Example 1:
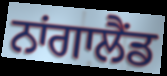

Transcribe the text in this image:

ਨਾਂਗਾਲੈਂਡ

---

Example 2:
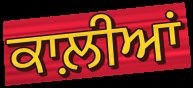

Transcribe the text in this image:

ਕਾਲ਼ੀਆਂ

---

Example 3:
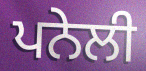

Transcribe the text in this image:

ਪਨੇਲੀ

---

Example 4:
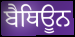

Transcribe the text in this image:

ਬੈਥਿਊਨ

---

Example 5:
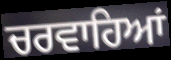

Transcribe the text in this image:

ਚਰਵਾਹਿਆਂ